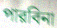
পারবিনা